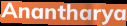
Anantharya